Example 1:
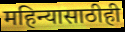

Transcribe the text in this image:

महिन्यासाठीही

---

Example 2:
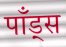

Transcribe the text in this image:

पाँड्स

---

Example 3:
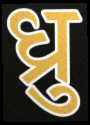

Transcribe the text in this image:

ध्रु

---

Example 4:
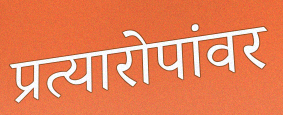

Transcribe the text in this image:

प्रत्यारोपांवर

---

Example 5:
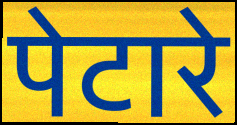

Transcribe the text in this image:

पेटारे